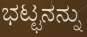
ಭಟ್ಟನನ್ನು